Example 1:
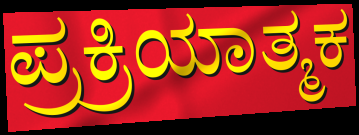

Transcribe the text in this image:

ಪ್ರಕ್ರಿಯಾತ್ಮಕ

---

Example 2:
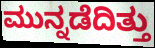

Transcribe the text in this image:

ಮುನ್ನಡೆದಿತ್ತು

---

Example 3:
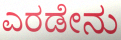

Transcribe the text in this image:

ಎರಡೇನು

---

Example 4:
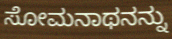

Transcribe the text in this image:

ಸೋಮನಾಥನನ್ನು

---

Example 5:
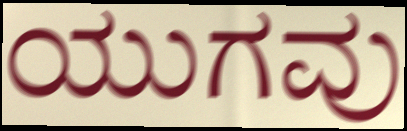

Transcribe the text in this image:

ಯುಗವು